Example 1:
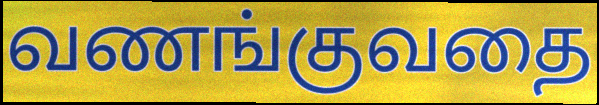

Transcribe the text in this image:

வணங்குவதை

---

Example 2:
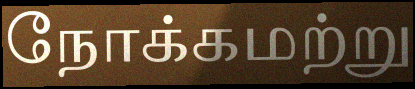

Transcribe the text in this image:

நோக்கமற்று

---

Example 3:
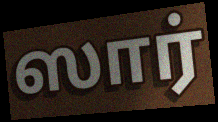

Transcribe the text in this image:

ஸார்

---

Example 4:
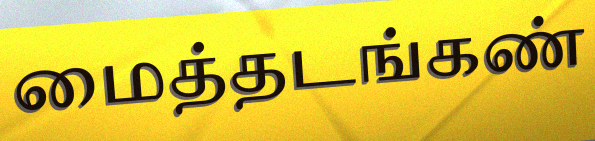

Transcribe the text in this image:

மைத்தடங்கண்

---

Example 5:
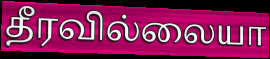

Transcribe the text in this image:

தீரவில்லையா